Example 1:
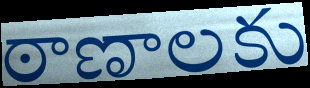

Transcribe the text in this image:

ఠాణాలకు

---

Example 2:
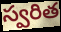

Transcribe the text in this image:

స్వరిత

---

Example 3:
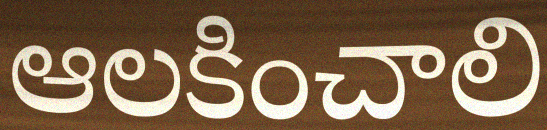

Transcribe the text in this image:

ఆలకించాలి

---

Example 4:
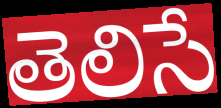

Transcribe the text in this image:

తెలిసే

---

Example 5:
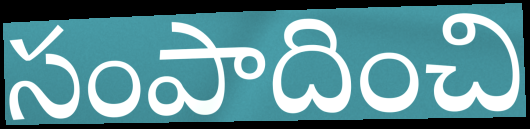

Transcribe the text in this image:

సంపాదించి